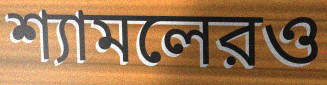
শ্যামলেরও